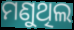
ମଣୁଥିଲ